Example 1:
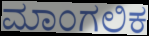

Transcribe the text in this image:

ಮಾಂಗಲಿಕ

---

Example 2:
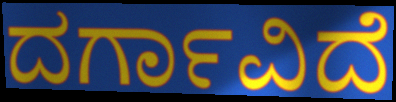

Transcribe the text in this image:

ದರ್ಗಾವಿದೆ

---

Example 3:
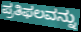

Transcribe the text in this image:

ಪ್ರತಿಫಲವನ್ನು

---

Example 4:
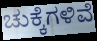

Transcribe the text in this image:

ಚುಕ್ಕೆಗಳಿವೆ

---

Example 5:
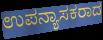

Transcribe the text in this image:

ಉಪನ್ಯಾಸಕರಾದ